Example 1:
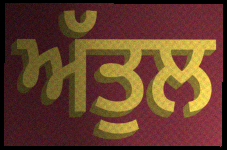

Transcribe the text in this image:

ਅੱਤੁਲ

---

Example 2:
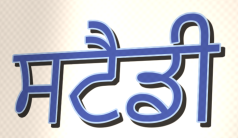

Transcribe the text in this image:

ਸਟੈਡੀ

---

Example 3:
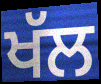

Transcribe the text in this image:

ਖੱਲ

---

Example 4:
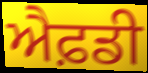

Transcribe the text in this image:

ਐਫ਼ਡੀ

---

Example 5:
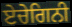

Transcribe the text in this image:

ਏਚੇਗਿਨੀ